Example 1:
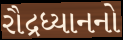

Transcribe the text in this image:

રૌદ્રધ્યાનનો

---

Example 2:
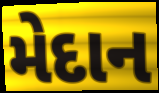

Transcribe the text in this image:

મેદાન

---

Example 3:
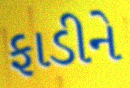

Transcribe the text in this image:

ફાડીને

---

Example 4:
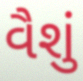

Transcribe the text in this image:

વૈશું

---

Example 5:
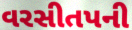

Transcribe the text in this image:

વરસીતપની